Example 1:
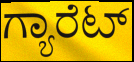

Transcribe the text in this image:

ಗ್ಯಾರೆಟ್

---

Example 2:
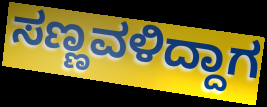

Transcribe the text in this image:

ಸಣ್ಣವಳಿದ್ದಾಗ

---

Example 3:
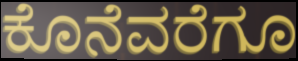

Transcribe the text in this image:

ಕೊನೆವರೆಗೂ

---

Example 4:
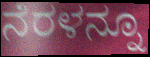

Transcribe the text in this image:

ನೆರಳನ್ನೂ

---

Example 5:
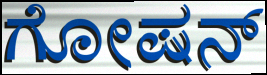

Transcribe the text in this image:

ಗೋಷನ್